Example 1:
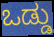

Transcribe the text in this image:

ಒಡ್ಡು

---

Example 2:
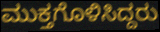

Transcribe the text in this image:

ಮುಕ್ತಗೊಳಿಸಿದ್ದರು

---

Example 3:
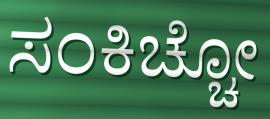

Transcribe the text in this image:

ಸಂಕಿಚ್ಚೋ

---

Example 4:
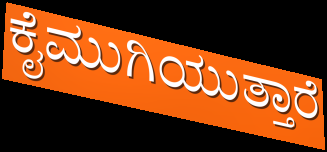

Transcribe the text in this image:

ಕೈಮುಗಿಯುತ್ತಾರೆ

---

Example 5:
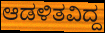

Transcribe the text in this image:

ಆಡಳಿತವಿದ್ದ